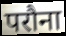
परौना